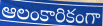
ఆలంకారికంగా